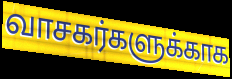
வாசகர்களுக்காக